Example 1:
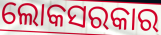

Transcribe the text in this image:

ଲୋକସରକାର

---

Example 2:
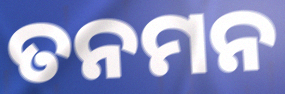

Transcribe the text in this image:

ତନମନ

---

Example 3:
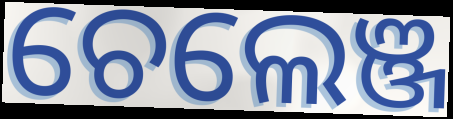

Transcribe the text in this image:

ଚେଲେଞ୍ଜ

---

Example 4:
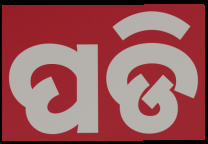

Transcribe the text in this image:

ପଡି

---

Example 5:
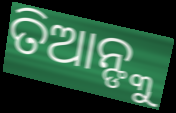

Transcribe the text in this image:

ତିଆନ୍ଙ୍କୁ